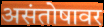
असंतोषावर